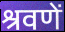
श्रवणें